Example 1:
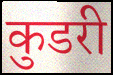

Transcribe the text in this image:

कुडरी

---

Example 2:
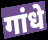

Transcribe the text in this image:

गांधे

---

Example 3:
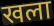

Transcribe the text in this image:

खला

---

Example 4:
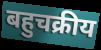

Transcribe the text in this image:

बहुचक्रीय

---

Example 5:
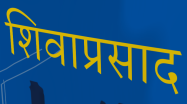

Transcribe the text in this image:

शिवाप्रसाद